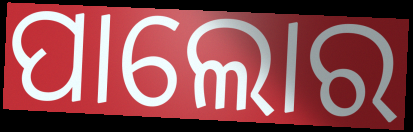
ପାଲୋର